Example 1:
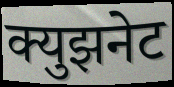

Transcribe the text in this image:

क्युझनेट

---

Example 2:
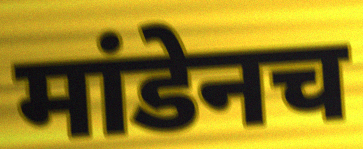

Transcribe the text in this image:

मांडेनच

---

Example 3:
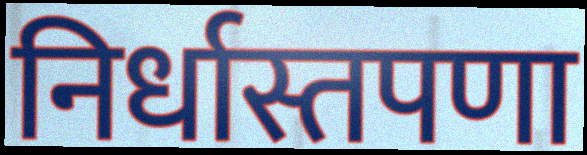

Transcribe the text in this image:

निर्धास्तपणा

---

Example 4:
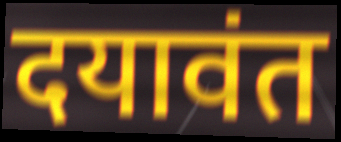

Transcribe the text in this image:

दयावंत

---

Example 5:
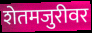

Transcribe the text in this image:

शेतमजुरीवर